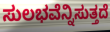
ಸುಲಭವೆನ್ನಿಸುತ್ತದೆ